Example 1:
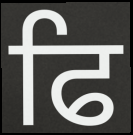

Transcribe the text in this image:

ਫਿ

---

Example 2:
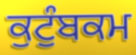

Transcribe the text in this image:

ਕੁਟੁੰਬਕਮ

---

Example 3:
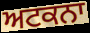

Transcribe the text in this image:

ਅਟਕਨਾ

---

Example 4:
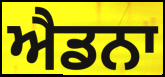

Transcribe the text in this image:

ਐਡਨਾ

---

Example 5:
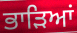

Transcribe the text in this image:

ਭਾੜਿਆਂ